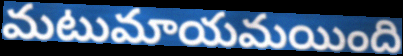
మటుమాయమయింది